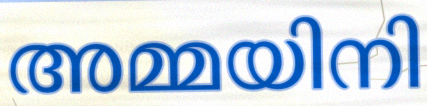
അമ്മയിനി